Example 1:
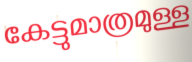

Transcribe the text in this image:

കേട്ടുമാത്രമുള്ള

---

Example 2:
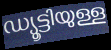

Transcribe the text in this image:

ഡ്യൂട്ടിയുള്ള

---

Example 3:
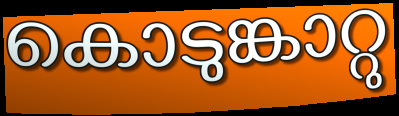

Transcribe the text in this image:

കൊടുങ്കാറ്റു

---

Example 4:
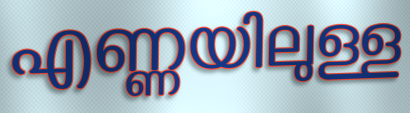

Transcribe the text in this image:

എണ്ണയിലുള്ള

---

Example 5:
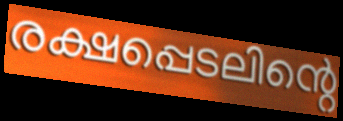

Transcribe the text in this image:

രക്ഷപ്പെടലിന്റെ